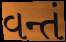
વન્તં